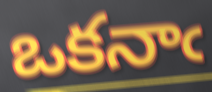
ఒకనాఁ